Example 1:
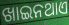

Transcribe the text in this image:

ଖାଇନଥାଏ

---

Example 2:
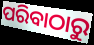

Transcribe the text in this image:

ପରିବାଠାରୁ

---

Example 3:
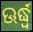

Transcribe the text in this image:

ଊର୍ଦ୍ଧ୍ବ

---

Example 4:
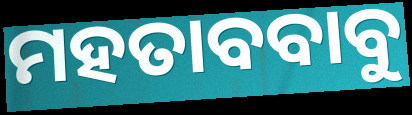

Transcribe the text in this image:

ମହତାବବାବୁ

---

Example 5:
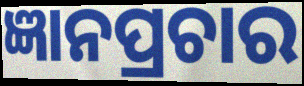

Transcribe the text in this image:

ଜ୍ଞାନପ୍ରଚାର